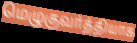
மெழுகுவர்த்தியாக